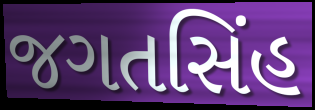
જગતસિંહ